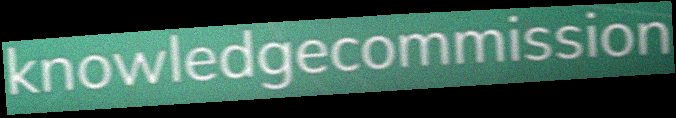
knowledgecommission